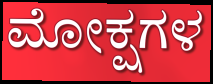
ಮೋಕ್ಷಗಳ